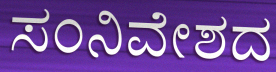
ಸಂನಿವೇಶದ